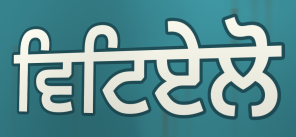
ਵਿਟਿਏਲੋ